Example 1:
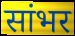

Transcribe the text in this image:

सांभर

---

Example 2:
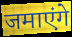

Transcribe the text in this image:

जमाएंगे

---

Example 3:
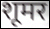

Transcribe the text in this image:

शूमर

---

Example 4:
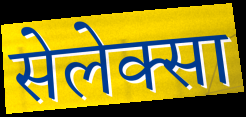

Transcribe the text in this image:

सेलेक्सा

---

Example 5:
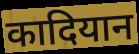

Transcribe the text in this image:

कादियान